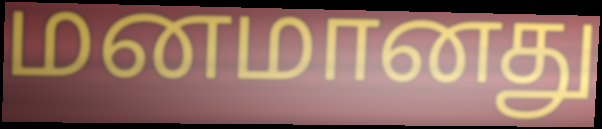
மனமானது